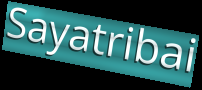
Sayatribai